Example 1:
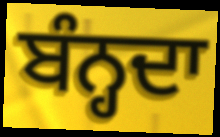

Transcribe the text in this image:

ਬੰਨ੍ਹਦਾ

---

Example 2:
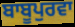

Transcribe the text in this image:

ਬਾਬੂਪੁਰਵਾ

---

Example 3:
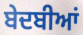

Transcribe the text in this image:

ਬੇਦਬੀਆਂ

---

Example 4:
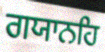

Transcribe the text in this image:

ਗਯਾਨਹਿ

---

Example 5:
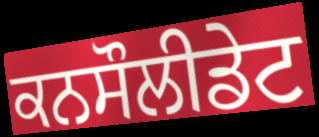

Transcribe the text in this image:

ਕਨਸੌਲੀਡੇਟ